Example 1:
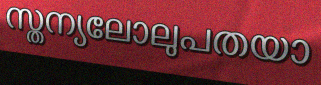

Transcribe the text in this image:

സ്തന്യലോലുപതയാ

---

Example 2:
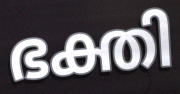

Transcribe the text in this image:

ഭക്തി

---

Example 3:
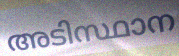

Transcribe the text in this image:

അടിസ്ഥാന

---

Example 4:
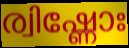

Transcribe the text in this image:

ര്വിഷ്ണോഃ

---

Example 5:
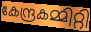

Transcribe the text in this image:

കേന്ദ്രകമ്മിറ്റി